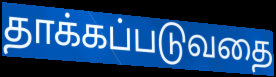
தாக்கப்படுவதை